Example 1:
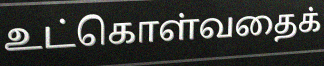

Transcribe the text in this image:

உட்கொள்வதைக்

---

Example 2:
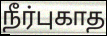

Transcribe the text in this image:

நீர்புகாத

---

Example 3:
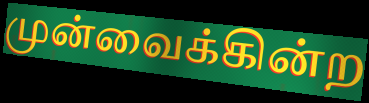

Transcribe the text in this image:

முன்வைக்கின்ற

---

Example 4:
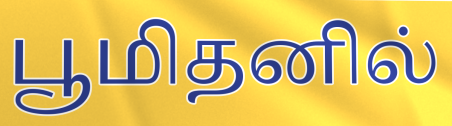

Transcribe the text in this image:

பூமிதனில்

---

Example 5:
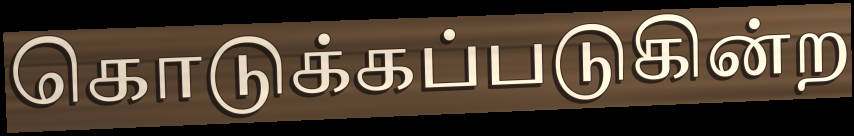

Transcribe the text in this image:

கொடுக்கப்படுகின்ற